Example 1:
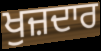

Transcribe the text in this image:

ਖੁਜ਼ਦਾਰ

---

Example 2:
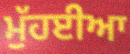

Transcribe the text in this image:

ਮੁੱਹਈਆ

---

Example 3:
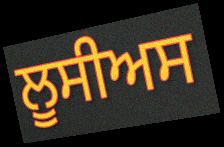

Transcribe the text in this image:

ਲੂਸੀਅਸ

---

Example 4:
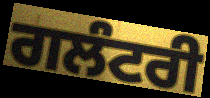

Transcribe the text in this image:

ਗਲੰਟਰੀ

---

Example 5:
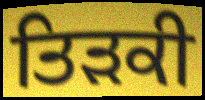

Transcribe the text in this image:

ਤਿੜਕੀ